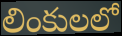
లింకులలో